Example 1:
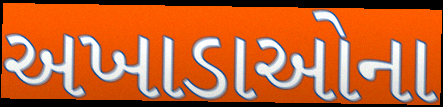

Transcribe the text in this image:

અખાડાઓના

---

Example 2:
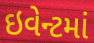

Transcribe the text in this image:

ઇવેન્ટમાં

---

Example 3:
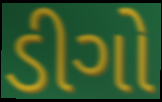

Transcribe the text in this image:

ડીગો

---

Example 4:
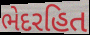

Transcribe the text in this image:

ભેદરહિત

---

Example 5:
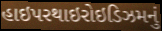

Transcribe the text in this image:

હાઇપરથાઇરોઇડિઝમનું